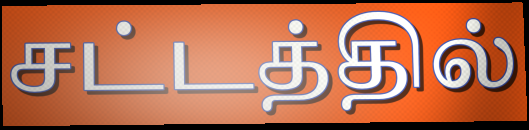
சட்டத்தில்